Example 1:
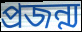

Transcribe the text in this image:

প্ৰজন্ম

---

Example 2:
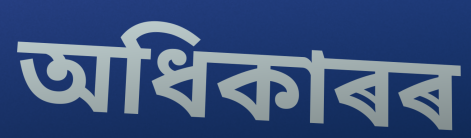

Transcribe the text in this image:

অধিকাৰৰ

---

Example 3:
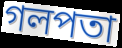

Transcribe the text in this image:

গলপতা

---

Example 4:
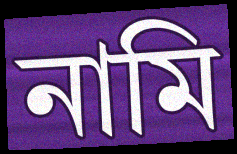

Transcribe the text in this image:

নামি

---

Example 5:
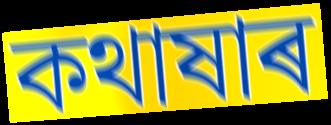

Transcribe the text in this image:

কথাষাৰ